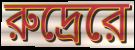
রুদ্রেরে